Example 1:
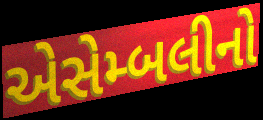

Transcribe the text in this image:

એસેમ્બલીનો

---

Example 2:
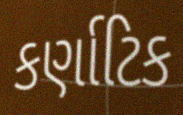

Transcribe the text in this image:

કર્ણાટિક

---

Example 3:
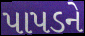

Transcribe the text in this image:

પાપડને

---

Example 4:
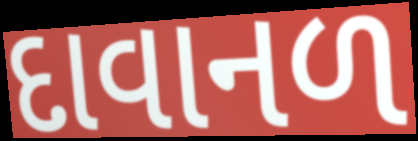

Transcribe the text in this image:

દાવાનળ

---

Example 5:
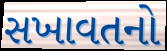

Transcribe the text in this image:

સખાવતનો